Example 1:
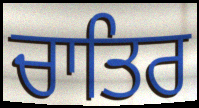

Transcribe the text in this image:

ਚਾਤਿਰ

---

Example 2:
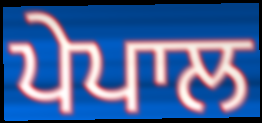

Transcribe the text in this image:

ਪੇਪਾਲ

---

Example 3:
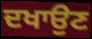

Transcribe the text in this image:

ਦਖਾਉਣ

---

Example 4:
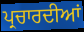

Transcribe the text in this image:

ਪ੍ਰਚਾਰਦੀਆਂ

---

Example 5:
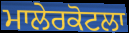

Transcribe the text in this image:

ਮਾਲੇਰਕੋਟਲਾ